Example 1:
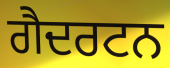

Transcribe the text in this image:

ਗੈਦਰਟਨ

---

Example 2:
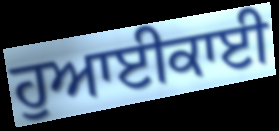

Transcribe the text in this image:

ਹੁਆਈਕਾਈ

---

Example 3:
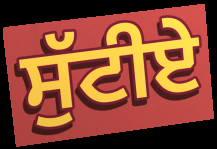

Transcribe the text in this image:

ਸੁੱਟੀਏ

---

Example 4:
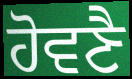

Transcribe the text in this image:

ਹੋਵਣੈ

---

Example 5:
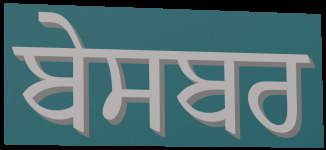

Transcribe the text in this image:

ਬੇਸਬਰ